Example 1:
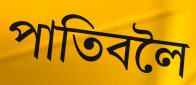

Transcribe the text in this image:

পাতিবলৈ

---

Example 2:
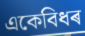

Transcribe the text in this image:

একেবিধৰ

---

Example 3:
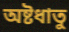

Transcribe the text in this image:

অষ্টধাতু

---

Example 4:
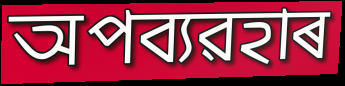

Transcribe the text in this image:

অপব্যৱহাৰ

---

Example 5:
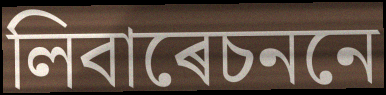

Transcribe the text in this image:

লিবাৰেচননে